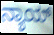
ನ್ಯಾಯ್